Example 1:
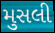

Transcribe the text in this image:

મુસલી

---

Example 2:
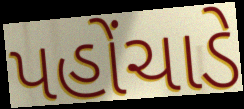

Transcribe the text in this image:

પહોંચાડે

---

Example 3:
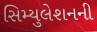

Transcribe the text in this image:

સિમ્યુલેશનની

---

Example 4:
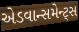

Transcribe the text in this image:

એડવાન્સમેન્ટ્સ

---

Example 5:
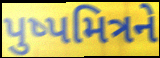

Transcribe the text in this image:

પુષ્પમિત્રને